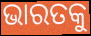
ଭାରତକୁ